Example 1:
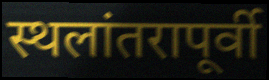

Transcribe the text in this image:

स्थलांतरापूर्वी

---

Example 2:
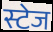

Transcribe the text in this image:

स्टेज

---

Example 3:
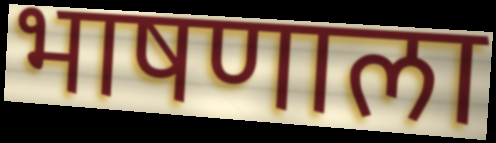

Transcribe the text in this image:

भाषणाला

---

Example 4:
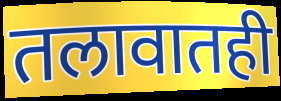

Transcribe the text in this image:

तलावातही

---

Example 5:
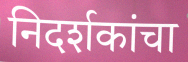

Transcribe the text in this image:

निदर्शकांचा